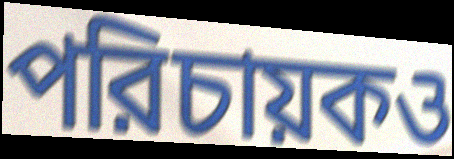
পরিচায়কও